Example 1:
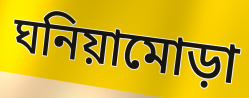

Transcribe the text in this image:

ঘনিয়ামোড়া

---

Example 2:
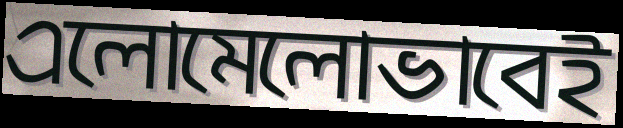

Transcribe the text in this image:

এলোমেলোভাবেই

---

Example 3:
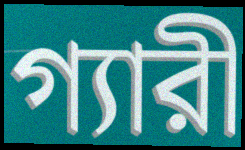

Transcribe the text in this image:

গ্যারী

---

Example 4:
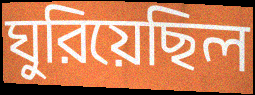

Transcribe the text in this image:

ঘুরিয়েছিল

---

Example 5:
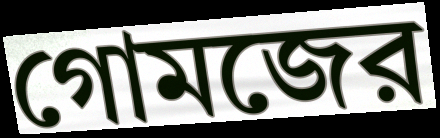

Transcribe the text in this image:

গোমজের